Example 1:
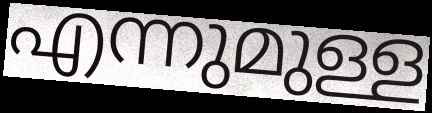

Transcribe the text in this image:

എന്നുമുള്ള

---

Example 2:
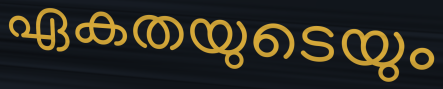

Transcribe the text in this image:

ഏകതയുടെയും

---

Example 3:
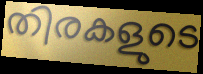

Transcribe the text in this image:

തിരകളുടെ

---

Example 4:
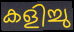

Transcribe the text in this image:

കളിച്ചു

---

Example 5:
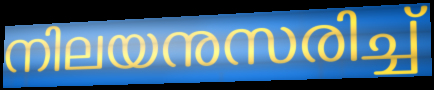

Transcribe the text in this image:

നിലയനുസരിച്ച്